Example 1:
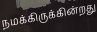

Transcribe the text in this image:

நமக்கிருக்கின்றது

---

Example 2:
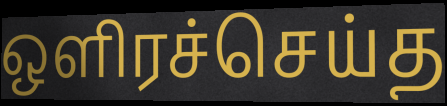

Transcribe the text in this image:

ஒளிரச்செய்த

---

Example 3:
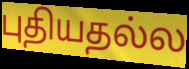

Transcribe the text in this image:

புதியதல்ல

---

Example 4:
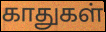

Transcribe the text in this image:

காதுகள்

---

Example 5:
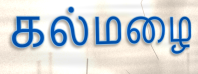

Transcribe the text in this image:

கல்மழை